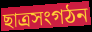
ছাত্রসংগঠন